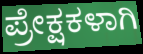
ಪ್ರೇಕ್ಷಕಳಾಗಿ